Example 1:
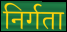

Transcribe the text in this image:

निर्गता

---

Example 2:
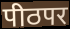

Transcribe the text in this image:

पीठपर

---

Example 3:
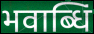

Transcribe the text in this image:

भवाब्धिं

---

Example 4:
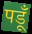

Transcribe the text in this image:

पडूँ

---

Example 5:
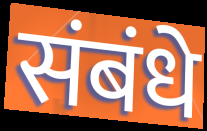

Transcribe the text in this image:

संबंधे